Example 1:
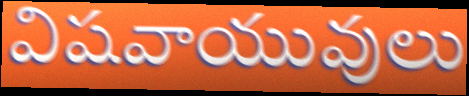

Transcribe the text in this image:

విషవాయువులు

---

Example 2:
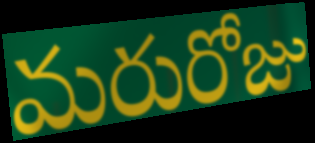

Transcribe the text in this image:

మరురోజు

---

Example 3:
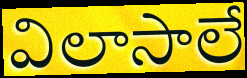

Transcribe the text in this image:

విలాసాలే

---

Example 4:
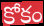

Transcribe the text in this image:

కోకం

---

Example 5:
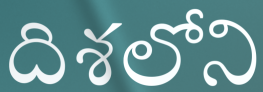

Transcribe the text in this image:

దిశలోని